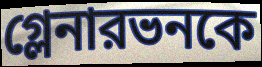
গ্লেনারভনকে